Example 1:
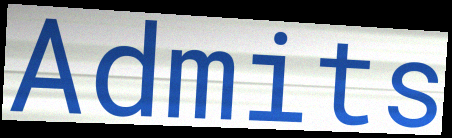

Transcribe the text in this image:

Admits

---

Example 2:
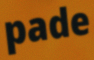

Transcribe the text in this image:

pade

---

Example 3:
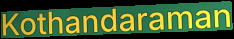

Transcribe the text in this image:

Kothandaraman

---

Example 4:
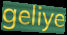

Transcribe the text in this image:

geliye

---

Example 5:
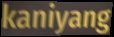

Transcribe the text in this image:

kaniyang